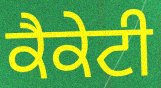
ਕੈਕੇਟੀ